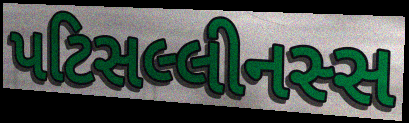
પટિસલ્લીનસ્સ